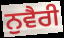
ਨੁਵੈਰੀ